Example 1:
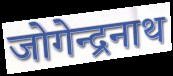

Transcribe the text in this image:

जोगेन्द्रनाथ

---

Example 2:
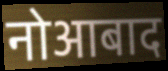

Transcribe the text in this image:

नोआबाद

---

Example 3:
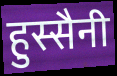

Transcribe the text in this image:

हुस्सैनी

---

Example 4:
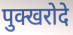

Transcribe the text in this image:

पुक्खरोदे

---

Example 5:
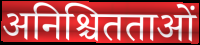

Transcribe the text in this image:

अनिश्चितताओं